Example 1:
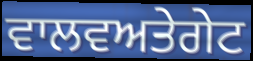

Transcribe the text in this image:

ਵਾਲਵਅਤੇਗੇਟ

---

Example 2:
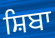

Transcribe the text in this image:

ਸ਼ਿਬਾ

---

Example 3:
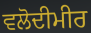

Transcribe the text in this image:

ਵਲੋਦੀਮੀਰ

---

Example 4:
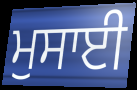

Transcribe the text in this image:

ਮੁਸਾਈ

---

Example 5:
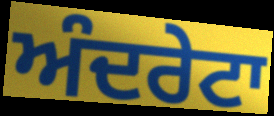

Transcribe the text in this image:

ਅੰਦਰੇਟਾ